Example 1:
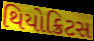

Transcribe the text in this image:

થિયોક્રિટસ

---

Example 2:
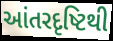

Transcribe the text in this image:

આંતરદૃષ્ટિથી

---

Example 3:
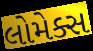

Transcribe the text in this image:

લોમેક્સ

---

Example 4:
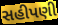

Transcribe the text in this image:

સહીપણી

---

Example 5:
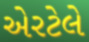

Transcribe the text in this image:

એરટેલે